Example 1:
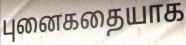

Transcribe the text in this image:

புனைகதையாக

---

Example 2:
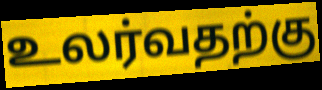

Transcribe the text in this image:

உலர்வதற்கு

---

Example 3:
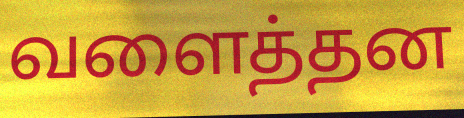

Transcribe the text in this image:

வளைத்தன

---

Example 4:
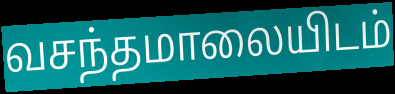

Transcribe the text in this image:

வசந்தமாலையிடம்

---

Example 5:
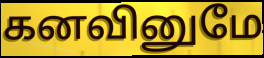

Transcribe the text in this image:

கனவினுமே